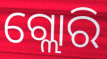
ଗ୍ଲୋରି